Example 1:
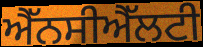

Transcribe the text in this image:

ਐੱਨਸੀਐੱਲਟੀ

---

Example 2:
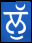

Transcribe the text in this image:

ਲੁੱ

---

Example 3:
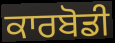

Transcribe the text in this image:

ਕਾਰਬੋਡੀ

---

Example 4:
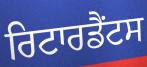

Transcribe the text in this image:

ਰਿਟਾਰਡੈਂਟਸ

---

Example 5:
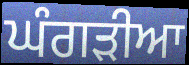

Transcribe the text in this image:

ਘੰਗੜੀਆ